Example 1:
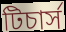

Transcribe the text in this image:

টিচার্স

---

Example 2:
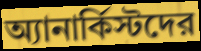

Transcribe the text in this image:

অ্যানার্কিস্টদের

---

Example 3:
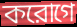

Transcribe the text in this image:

করোগে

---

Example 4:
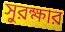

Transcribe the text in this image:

সুরক্ষার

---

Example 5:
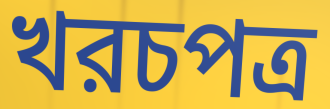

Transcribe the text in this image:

খরচপত্র